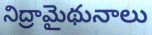
నిద్రామైథునాలు